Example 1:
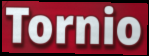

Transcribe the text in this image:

Tornio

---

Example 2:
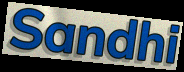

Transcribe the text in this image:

Sandhi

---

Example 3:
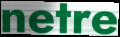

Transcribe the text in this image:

netre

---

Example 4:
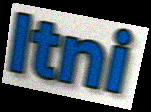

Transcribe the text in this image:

Itni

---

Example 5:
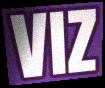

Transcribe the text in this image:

VIZ